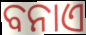
ବନାଏ